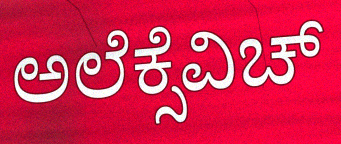
ಅಲೆಕ್ಸೆವಿಚ್